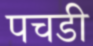
पचडी